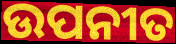
ଉପନୀତ